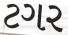
ટગર